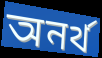
অনৰ্থ